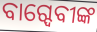
ବାଗ୍ଦେବୀଙ୍କ